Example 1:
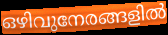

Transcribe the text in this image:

ഒഴിവുനേരങ്ങളിൽ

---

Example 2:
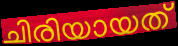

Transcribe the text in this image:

ചിരിയായത്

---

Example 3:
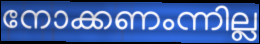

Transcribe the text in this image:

നോക്കണംന്നില്ല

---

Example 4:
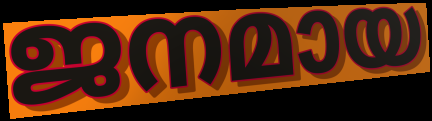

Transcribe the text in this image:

ജനമായ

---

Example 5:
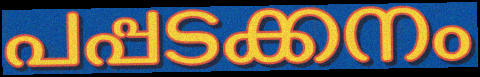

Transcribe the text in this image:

പപ്പടക്കനം